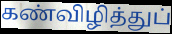
கண்விழித்துப்